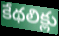
కేథలిక్లు